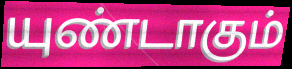
யுண்டாகும்